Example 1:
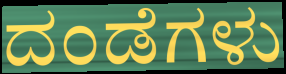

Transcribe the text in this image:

ದಂಡೆಗಳು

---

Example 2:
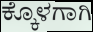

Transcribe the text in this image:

ಕ್ಕೊಳಗಾಗಿ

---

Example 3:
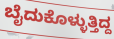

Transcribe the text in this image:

ಬೈದುಕೊಳ್ಳುತ್ತಿದ್ದ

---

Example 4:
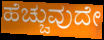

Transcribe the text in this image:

ಹೆಚ್ಚುವುದೇ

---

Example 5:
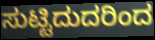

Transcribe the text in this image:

ಸುಟ್ಟಿದುದರಿಂದ